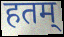
हतम्